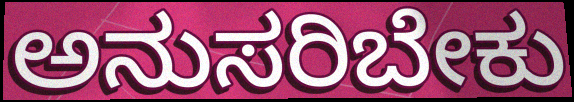
ಅನುಸರಿಬೇಕು